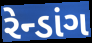
રેન્ડાંગ